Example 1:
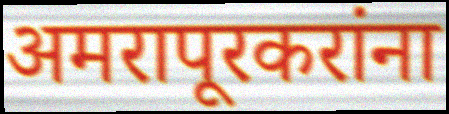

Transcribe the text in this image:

अमरापूरकरांना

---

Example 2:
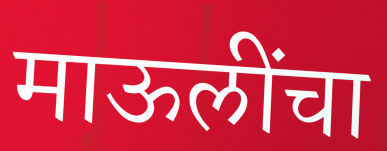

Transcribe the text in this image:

माऊलींचा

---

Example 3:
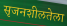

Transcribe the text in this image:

सृजनशीलतेला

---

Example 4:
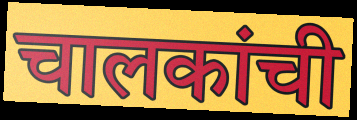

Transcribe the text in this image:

चालकांची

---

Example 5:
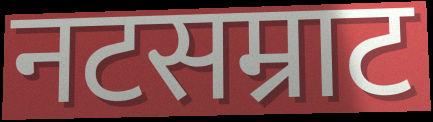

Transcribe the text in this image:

नटसम्राट